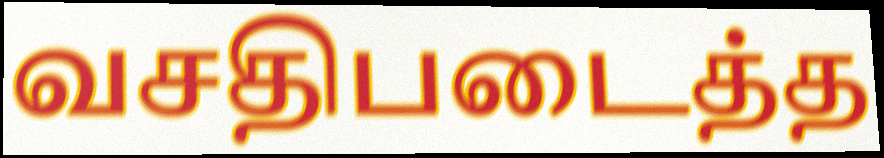
வசதிபடைத்த